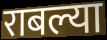
राबल्या